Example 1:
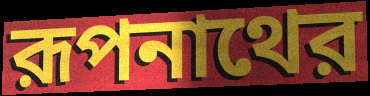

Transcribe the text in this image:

রূপনাথের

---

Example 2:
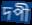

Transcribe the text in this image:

দপী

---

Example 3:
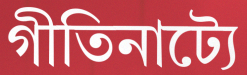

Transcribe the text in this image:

গীতিনাট্যে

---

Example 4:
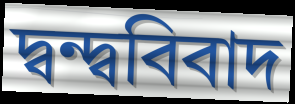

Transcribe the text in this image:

দ্বন্দ্ববিবাদ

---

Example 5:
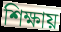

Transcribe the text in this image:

শিক্ষায়